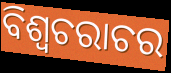
ବିଶ୍ଵଚରାଚର